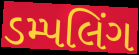
ડમ્પલિંગ